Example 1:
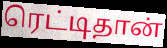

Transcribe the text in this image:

ரெட்டிதான்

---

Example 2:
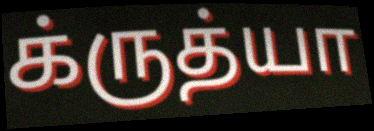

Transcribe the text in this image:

க்ருத்யா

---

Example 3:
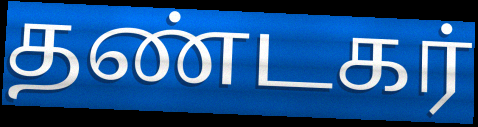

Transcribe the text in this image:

தண்டகர்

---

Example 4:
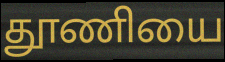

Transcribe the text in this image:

தூணியை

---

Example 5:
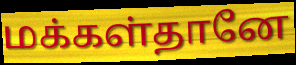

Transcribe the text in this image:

மக்கள்தானே